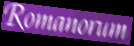
Romanorum